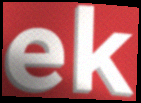
ek